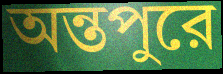
অন্তপুরে